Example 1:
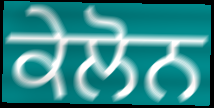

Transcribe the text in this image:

ਕੇਲੋਨ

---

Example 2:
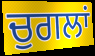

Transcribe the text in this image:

ਚੁਗਲਾਂ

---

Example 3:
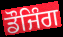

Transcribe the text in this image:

ਡੌਜਿੰਗ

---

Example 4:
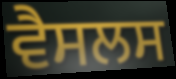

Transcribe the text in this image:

ਵੈਸਲਸ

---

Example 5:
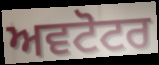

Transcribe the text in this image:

ਅਵਟੋਟਰ